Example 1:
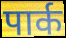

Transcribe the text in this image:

पार्क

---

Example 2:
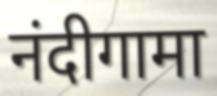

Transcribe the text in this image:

नंदीगामा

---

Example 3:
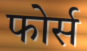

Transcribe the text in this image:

फोर्स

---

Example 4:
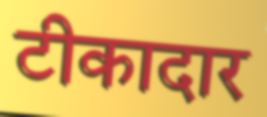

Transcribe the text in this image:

टीकादार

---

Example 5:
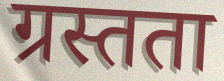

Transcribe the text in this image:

ग्रस्तता